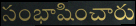
సంభాషించారు